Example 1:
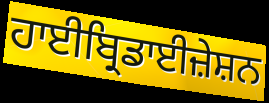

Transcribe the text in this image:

ਹਾਈਬ੍ਰਿਡਾਈਜ਼ੇਸ਼ਨ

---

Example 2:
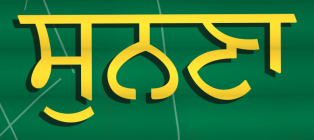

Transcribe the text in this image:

ਸੁਨਣਾ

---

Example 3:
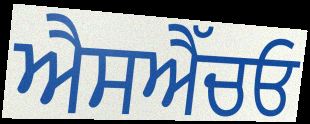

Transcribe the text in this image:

ਐਸਐੱਚਓ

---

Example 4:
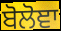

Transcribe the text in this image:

ਬੋਲੋਞਾ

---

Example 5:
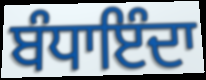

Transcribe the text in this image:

ਬੰਧਾਇੰਦਾ